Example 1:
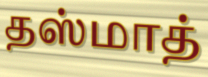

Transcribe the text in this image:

தஸ்மாத்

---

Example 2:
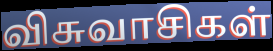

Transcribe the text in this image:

விசுவாசிகள்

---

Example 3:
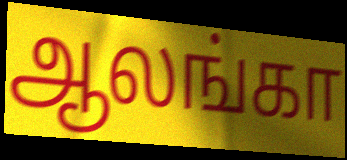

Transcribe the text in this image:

ஆலங்கா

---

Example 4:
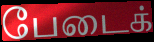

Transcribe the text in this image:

பேடைக்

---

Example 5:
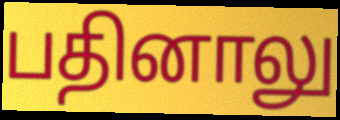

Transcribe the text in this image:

பதினாலு